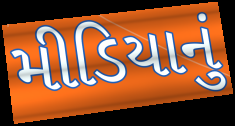
મીડિયાનું